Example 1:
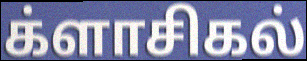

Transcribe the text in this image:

க்ளாசிகல்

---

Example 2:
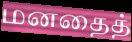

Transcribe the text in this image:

மனதைத்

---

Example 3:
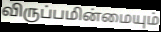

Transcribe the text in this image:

விருப்பமின்மையும்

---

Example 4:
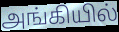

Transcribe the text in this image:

அங்கியில்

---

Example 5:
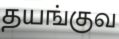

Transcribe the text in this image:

தயங்குவ